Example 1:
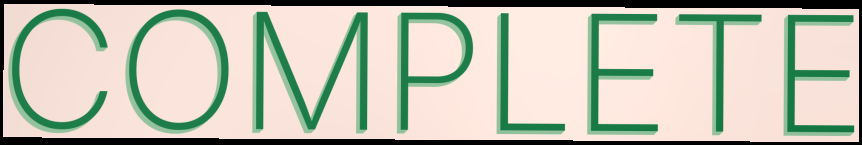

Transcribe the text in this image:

COMPLETE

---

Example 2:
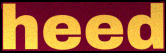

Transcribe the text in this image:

heed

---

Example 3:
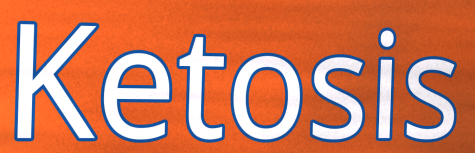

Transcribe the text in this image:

Ketosis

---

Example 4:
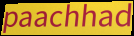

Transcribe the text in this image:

paachhad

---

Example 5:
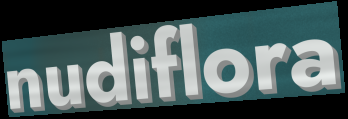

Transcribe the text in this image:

nudiflora